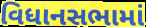
વિધાનસભામાં